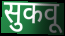
सुकवू